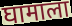
घामाला